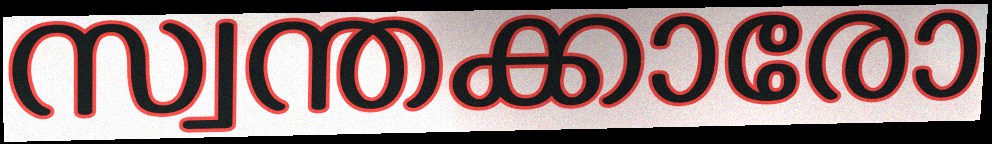
സ്വന്തക്കാരോ